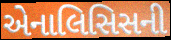
એનાલિસિસની